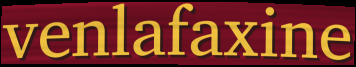
venlafaxine